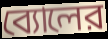
ব্যোলের